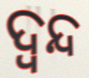
ଦ୍ଵନ୍ଦ